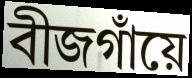
বীজগাঁয়ে